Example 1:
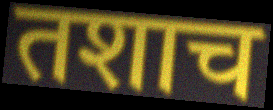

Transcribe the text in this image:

तशाच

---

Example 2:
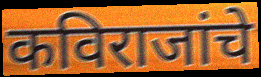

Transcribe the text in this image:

कविराजांचे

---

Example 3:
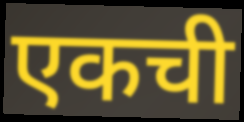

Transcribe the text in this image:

एकची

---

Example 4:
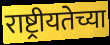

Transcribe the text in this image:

राष्ट्रीयतेच्या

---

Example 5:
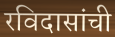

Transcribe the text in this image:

रविदासांची